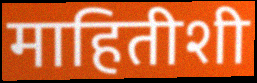
माहितीशी